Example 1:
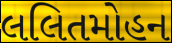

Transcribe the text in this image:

લલિતમોહન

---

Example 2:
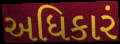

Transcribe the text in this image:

અધિકારં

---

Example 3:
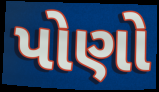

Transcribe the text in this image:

પોણો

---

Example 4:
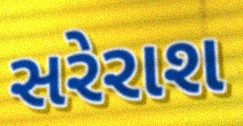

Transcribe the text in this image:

સરેરાશ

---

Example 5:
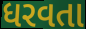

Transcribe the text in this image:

ધરવતા